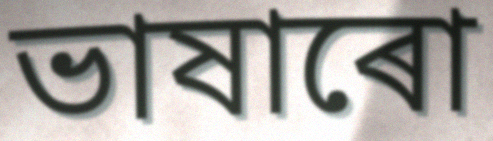
ভাষাৰো